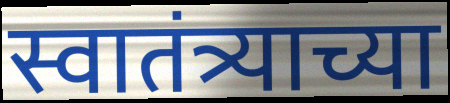
स्वातंत्र्याच्या